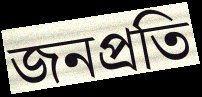
জনপ্রতি